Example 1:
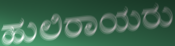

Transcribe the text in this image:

ಹುಲಿರಾಯರು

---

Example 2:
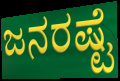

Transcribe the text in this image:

ಜನರಷ್ಟೆ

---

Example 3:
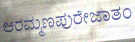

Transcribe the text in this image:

ಆರಮ್ಮಣಪುರೇಜಾತಂ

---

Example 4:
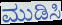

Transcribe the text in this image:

ಮುಡಿಸಿ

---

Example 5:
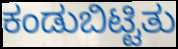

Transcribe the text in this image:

ಕಂಡುಬಿಟ್ಟಿತು